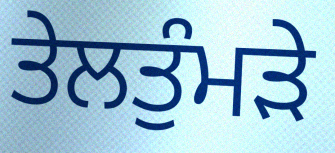
ਤੇਲਤੁੰਮੜੇ